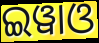
ଇୱାଓ